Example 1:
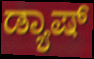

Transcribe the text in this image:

ಡ್ಯಾಷ್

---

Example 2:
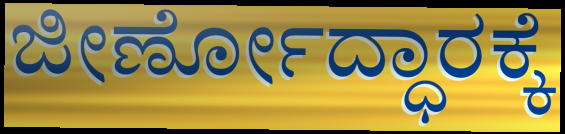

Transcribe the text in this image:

ಜೀರ್ಣೋದ್ಧಾರಕ್ಕೆ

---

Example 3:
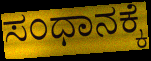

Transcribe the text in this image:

ಸಂಧಾನಕ್ಕೆ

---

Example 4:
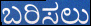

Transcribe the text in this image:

ಬರಿಸಲು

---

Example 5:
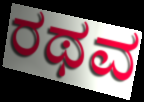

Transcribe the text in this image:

ರಥವ